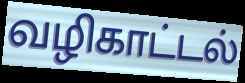
வழிகாட்டல்